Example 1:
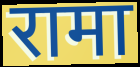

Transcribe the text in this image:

रामा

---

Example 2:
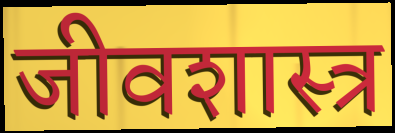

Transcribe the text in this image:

जीवशास्त्र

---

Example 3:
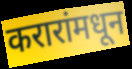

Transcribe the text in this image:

करारांमधून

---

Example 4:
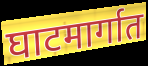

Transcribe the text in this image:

घाटमार्गात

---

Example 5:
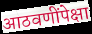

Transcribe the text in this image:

आठवणींपेक्षा